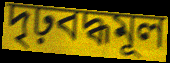
দৃঢ়বদ্ধমূল